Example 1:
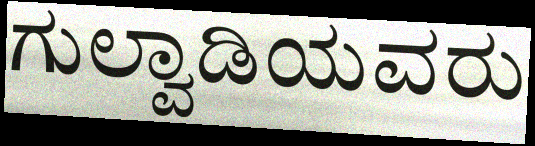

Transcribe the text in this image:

ಗುಲ್ವಾಡಿಯವರು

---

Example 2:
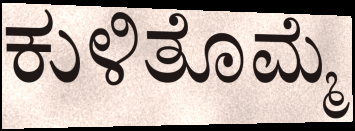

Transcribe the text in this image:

ಕುಳಿತೊಮ್ಮೆ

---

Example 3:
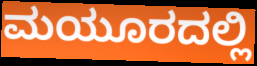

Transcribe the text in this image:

ಮಯೂರದಲ್ಲಿ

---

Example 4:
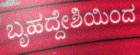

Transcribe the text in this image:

ಬೃಹದ್ದೇಶಿಯಿಂದ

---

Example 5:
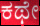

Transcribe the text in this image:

ಕಥೇ